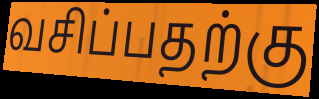
வசிப்பதற்கு